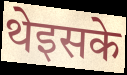
थेइसके